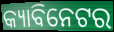
କ୍ୟାବିନେଟର